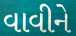
વાવીને